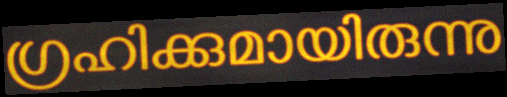
ഗ്രഹിക്കുമായിരുന്നു